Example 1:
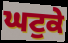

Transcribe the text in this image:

ਘਟੁਕੇ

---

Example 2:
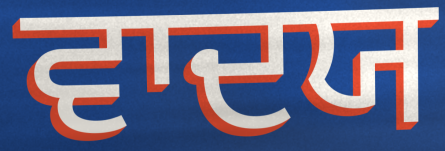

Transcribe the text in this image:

ਵਾਦਯ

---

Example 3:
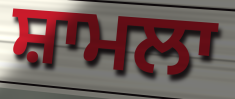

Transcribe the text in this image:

ਸ਼ਾਮਲਾ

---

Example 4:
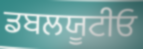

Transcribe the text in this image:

ਡਬਲਯੂਟੀਓ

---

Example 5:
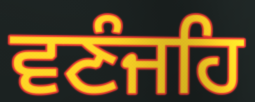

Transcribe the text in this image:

ਵਣੰਜਹਿ